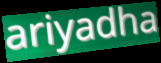
ariyadha